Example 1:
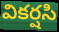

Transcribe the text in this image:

వికర్షసి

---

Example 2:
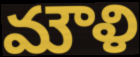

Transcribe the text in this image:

మౌళి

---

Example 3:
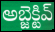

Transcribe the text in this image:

అబ్జెక్టివ్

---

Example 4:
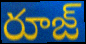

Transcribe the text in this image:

రూజ్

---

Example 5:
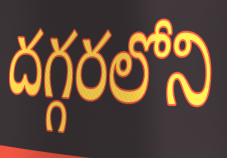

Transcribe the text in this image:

దగ్గరలోని